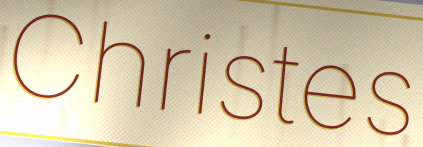
Christes